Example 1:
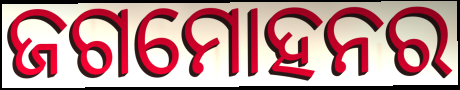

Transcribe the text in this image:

ଜଗମୋହନର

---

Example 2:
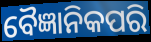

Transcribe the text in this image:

ବୈଜ୍ଞାନିକପରି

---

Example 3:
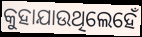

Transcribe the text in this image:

କୁହାଯାଉଥିଲେହେଁ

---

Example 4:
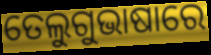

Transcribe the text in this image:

ତେଲୁଗୁଭାଷାରେ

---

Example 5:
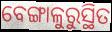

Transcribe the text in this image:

ବେଙ୍ଗାଳୁରୁସ୍ଥିତ